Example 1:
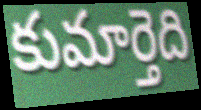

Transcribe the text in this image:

కుమార్తెది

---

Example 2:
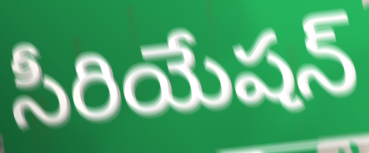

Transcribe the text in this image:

సీరియేషన్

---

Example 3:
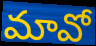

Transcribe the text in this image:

మావో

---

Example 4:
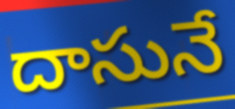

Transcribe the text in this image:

దాసునే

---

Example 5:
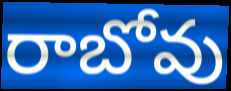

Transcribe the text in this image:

రాబోవు